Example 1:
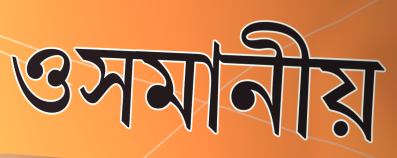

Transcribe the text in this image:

ওসমানীয়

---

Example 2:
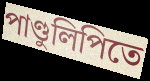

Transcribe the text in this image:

পাণ্ডুলিপিতে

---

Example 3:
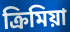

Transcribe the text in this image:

ক্রিমিয়া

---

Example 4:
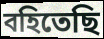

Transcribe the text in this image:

বহিতেছি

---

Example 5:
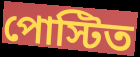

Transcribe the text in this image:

পোস্টিত